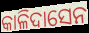
କାଳିଦାସେନ